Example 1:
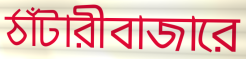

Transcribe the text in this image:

ঠাঁটারীবাজারে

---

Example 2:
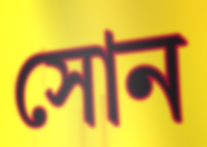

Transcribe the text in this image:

সোন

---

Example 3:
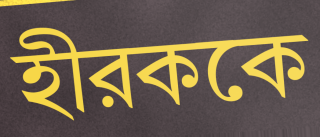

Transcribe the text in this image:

হীরককে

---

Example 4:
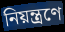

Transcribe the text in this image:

নিয়ন্ত্রণে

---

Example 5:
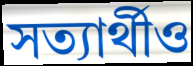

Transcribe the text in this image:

সত্যার্থীও